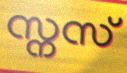
സ്നസ്